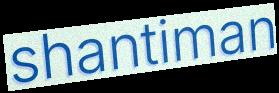
shantiman